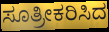
ಸೂತ್ರೀಕರಿಸಿದ